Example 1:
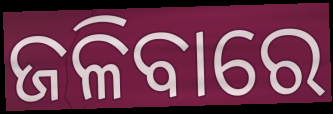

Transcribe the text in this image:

ଜଳିବାରେ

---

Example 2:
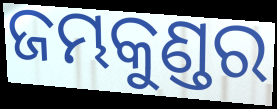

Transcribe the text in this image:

ଜମ୍ଭକୁଣ୍ଡର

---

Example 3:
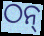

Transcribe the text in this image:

ଠନ୍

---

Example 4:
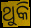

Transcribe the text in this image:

ଥୁକି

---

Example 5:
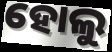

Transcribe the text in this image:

ହୋଲୁ